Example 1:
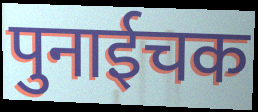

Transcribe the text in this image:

पुनाईचक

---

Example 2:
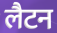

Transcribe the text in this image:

लैटन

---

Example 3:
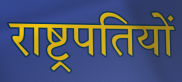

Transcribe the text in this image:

राष्ट्रपतियों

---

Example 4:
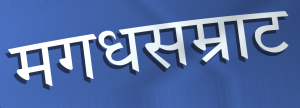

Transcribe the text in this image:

मगधसम्राट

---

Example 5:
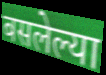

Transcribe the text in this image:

बसलेल्या